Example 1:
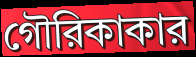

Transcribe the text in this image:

গৌরিকাকার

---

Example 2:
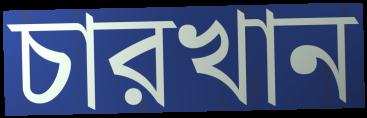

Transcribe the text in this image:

চারখান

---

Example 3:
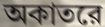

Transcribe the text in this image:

অকাতরে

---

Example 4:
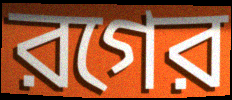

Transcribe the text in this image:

রগের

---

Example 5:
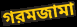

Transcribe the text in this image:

গরমজামা